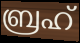
ബ്രഹ്